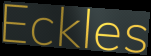
Eckles